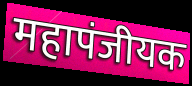
महापंजीयक